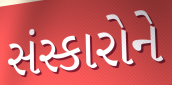
સંસ્કારોને